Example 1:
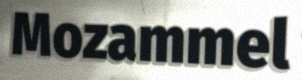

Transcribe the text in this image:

Mozammel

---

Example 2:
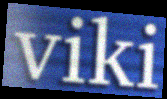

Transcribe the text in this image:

viki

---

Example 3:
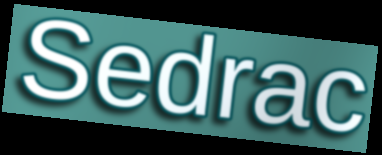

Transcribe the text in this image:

Sedrac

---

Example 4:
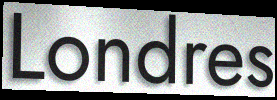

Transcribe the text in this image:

Londres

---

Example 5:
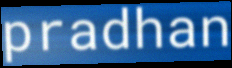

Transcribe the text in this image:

pradhan